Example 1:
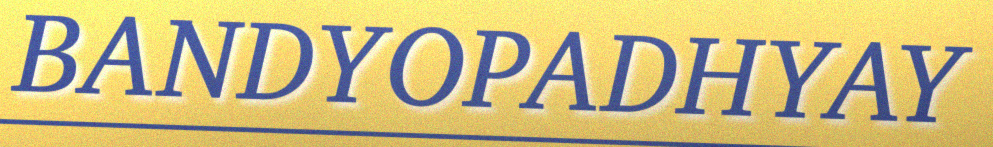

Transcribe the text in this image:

BANDYOPADHYAY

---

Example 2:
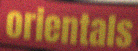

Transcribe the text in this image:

orientals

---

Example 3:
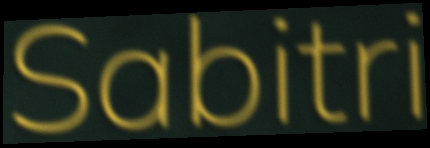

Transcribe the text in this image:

Sabitri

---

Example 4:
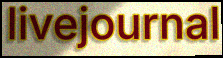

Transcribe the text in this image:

livejournal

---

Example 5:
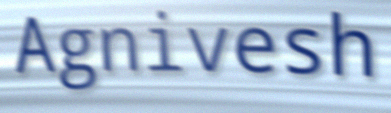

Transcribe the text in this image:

Agnivesh